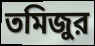
তমিজুর